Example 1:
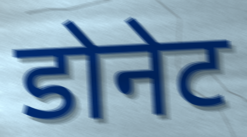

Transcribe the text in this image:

डोनेट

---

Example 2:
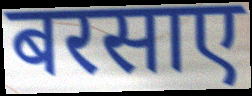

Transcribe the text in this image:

बरसाए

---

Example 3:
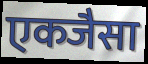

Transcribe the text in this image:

एकजैसा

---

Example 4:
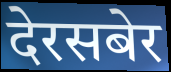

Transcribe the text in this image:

देरसबेर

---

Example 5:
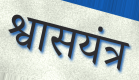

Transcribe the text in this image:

श्वासयंत्र